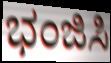
ಭಂಜಿಸಿ